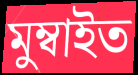
মুম্বাইত